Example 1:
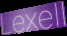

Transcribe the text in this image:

Lexell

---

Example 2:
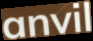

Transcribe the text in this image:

anvil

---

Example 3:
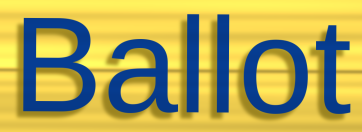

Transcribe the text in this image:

Ballot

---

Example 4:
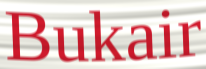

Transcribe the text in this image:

Bukair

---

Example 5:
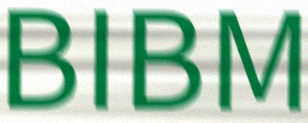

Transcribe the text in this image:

BIBM